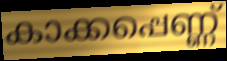
കാക്കപ്പെണ്ണ്